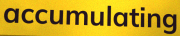
accumulating